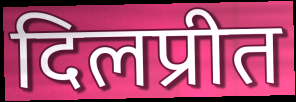
दिलप्रीत